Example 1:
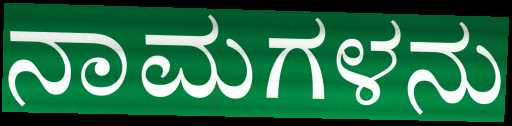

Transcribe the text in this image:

ನಾಮಗಳನು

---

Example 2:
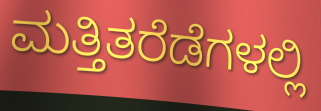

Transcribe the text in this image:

ಮತ್ತಿತರೆಡೆಗಳಲ್ಲಿ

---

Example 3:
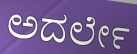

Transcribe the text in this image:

ಅದರ್ಲೇ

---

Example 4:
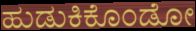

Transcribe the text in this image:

ಹುಡುಕಿಕೊಂಡೋ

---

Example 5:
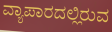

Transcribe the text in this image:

ವ್ಯಾಪಾರದಲ್ಲಿರುವ